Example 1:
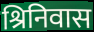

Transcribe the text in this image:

श्रिनिवास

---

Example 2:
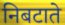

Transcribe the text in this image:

निबटाते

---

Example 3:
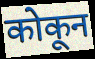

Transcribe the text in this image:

कोकून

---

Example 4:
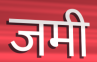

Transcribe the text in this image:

जमी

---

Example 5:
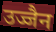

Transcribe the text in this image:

उज्जैन